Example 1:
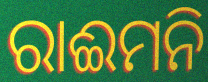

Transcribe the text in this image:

ରାଈମନି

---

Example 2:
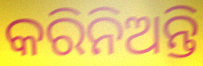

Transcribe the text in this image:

କରିନିଅନ୍ତି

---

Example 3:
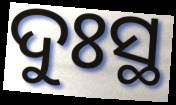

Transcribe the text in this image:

ଦୁଃସ୍ଥ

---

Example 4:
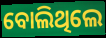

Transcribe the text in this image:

ବୋଲିଥିଲେ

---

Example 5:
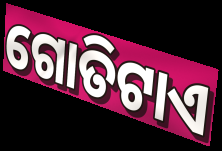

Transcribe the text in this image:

ଗୋତିଟାଏ